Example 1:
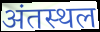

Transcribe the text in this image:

अंतस्थल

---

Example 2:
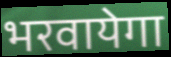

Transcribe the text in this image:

भरवायेगा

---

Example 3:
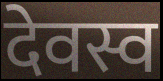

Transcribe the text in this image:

देवस्व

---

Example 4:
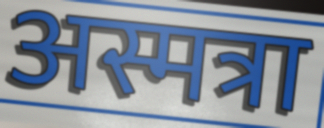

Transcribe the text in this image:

अस्मत्रा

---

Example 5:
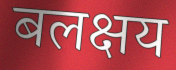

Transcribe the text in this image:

बलक्षय